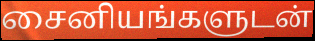
சைனியங்களுடன்